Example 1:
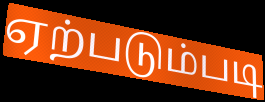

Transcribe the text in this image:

ஏற்படும்படி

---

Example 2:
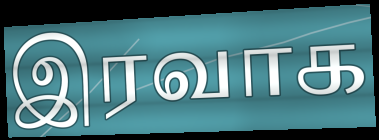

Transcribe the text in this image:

இரவாக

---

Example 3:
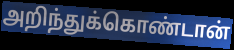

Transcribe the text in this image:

அறிந்துக்கொண்டான்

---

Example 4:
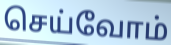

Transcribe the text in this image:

செய்வோம்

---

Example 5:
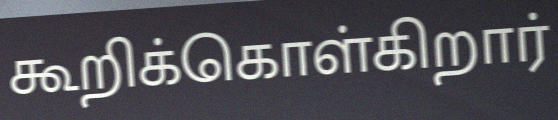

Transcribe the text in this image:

கூறிக்கொள்கிறார்